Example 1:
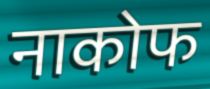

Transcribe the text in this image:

नाकोफ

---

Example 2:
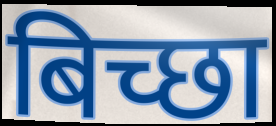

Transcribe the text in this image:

बिच्छा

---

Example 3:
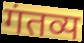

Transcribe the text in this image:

गंतव्य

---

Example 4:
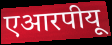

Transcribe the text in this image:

एआरपीयू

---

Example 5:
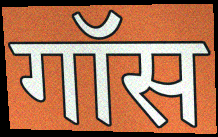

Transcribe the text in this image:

गॉस